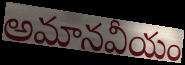
అమానవీయం